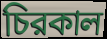
চিরকাল